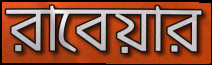
রাবেয়ার